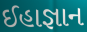
ઈહાજ્ઞાન